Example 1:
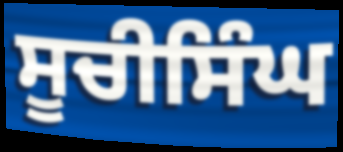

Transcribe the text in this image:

ਸੂਚੀਸਿੰਘ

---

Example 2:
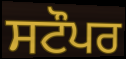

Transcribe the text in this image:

ਸਟੌਪਰ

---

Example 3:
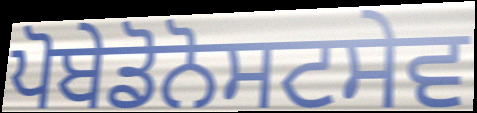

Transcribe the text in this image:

ਪੋਬੇਡੋਨੋਸਟਸੇਵ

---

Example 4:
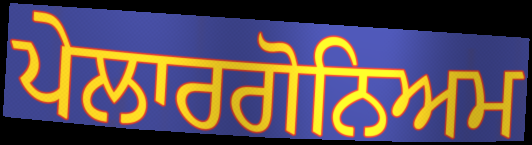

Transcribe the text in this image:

ਪੇਲਾਰਗੋਨਿਅਮ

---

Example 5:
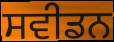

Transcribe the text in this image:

ਸਵੀਡਨ